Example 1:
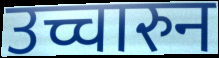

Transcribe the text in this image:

उच्चारुन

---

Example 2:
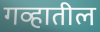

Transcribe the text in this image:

गव्हातील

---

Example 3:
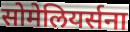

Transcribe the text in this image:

सोमेलियर्सना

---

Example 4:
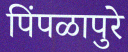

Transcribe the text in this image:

पिंपळापुरे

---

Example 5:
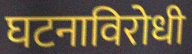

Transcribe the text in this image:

घटनाविरोधी